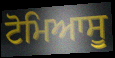
ਟੋਮਿਆਸੂ